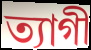
ত্যাগী